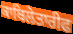
ਕਾਬਿਲੇਤਾਰੀਫ